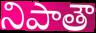
నిపాతౌ